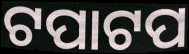
ଟପାଟପ